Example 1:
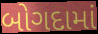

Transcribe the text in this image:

બોગદામાં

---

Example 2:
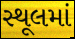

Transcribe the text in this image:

સ્થૂલમાં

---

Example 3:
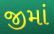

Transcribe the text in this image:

જીમાં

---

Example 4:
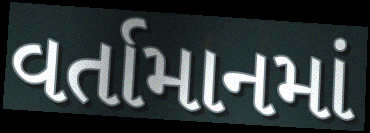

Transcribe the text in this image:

વર્તામાનમાં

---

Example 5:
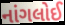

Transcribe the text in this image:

નાંગલોઈ